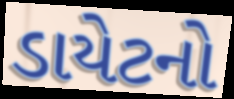
ડાયેટનો